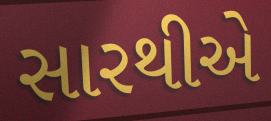
સારથીએ